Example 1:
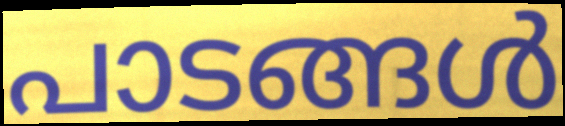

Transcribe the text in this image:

പാടങ്ങൾ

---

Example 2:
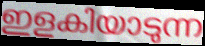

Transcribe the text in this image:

ഇളകിയാടുന്ന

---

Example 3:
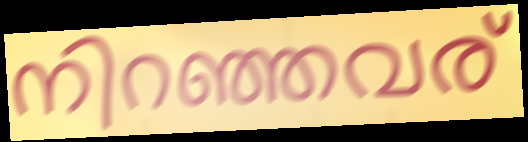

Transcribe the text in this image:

നിറഞ്ഞവര്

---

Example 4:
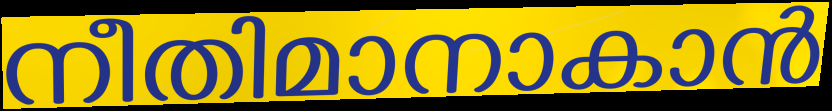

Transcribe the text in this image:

നീതിമാനാകാൻ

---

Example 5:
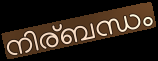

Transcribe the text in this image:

നിര്ബന്ധം